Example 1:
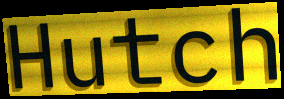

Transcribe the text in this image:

Hutch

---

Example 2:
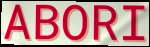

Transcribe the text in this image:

ABORI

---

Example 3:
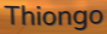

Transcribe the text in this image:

Thiongo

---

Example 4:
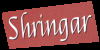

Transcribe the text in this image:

Shringar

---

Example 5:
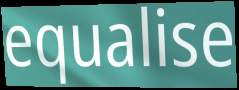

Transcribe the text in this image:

equalise